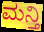
ಮನ್ತಿ